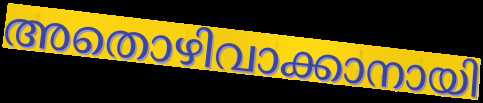
അതൊഴിവാക്കാനായി